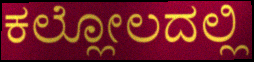
ಕಲ್ಲೋಲದಲ್ಲಿ